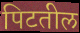
पिटतील